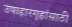
उपाहारगृहांसाठी